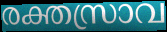
രക്തസ്രാവ